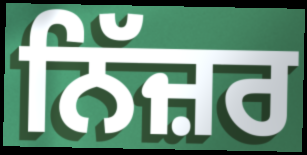
ਨਿੱਜ਼ਰ